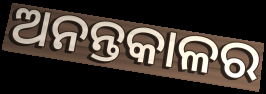
ଅନନ୍ତକାଳର